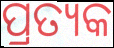
ପ୍ରତ୍ୟକ